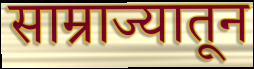
साम्राज्यातून